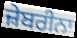
ਜ਼ੇਬਰੀਨਾ